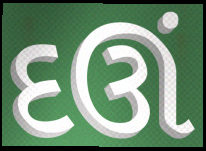
દઊં